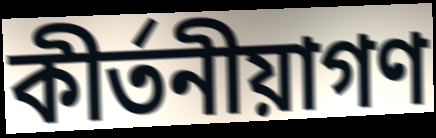
কীর্তনীয়াগণ